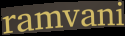
ramvani